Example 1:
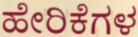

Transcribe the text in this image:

ಹೇರಿಕೆಗಳ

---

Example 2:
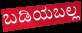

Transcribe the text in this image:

ಬಡಿಯಬಲ್ಲ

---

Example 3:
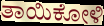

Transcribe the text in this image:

ತಾಯಿಕೋಳಿ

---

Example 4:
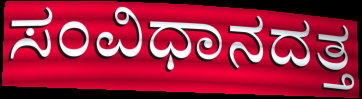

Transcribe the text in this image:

ಸಂವಿಧಾನದತ್ತ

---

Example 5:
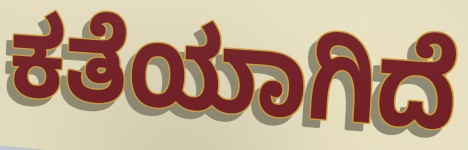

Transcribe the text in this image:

ಕತೆಯಾಗಿದೆ